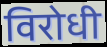
विरोधी